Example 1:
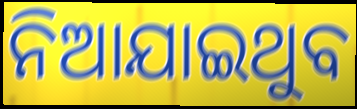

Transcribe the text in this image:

ନିଆଯାଇଥୁବ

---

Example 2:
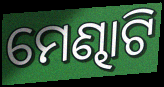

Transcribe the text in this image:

ମେଣ୍ଢାଟି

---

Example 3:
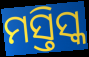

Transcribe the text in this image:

ମସ୍ତିସ୍କ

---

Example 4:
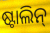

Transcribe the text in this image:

ଷ୍ଟାଲିନ୍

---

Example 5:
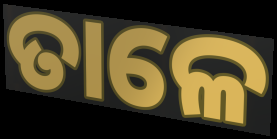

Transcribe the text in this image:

ତାଳେ